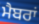
ਮੈਬਰਾਂ